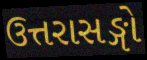
ઉત્તરાસઙ્ગો